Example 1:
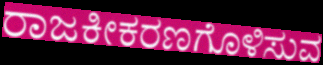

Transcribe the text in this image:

ರಾಜಕೀಕರಣಗೊಳಿಸುವ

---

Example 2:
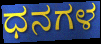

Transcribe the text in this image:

ಧನಗಳ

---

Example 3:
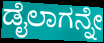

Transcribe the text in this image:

ಡೈಲಾಗನ್ನೇ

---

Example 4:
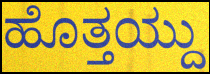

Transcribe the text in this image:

ಹೊತ್ತಯ್ದು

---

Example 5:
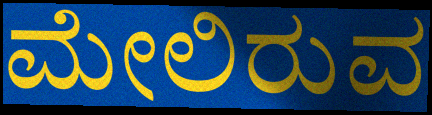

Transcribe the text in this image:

ಮೇಲಿರುವ